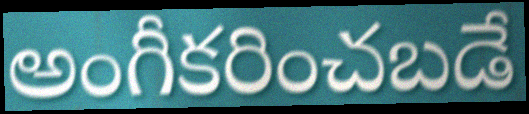
అంగీకరించబడే